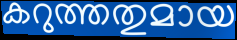
കറുത്തതുമായ